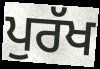
ਪੁਰੱਖ